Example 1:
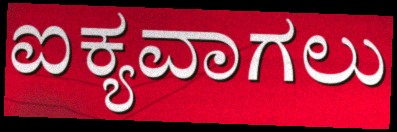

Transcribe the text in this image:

ಐಕ್ಯವಾಗಲು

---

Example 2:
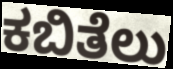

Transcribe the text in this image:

ಕಬಿತೆಲು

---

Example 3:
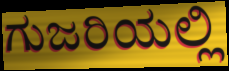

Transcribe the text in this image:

ಗುಜರಿಯಲ್ಲಿ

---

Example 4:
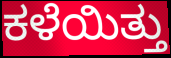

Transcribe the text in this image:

ಕಳೆಯಿತ್ತು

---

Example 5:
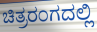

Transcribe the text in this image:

ಚಿತ್ರರಂಗದಲ್ಲಿ